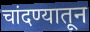
चांदण्यातून